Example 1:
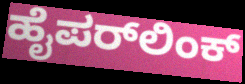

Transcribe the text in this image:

ಹೈಪರ್‌ಲಿಂಕ್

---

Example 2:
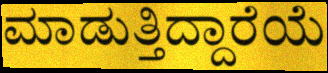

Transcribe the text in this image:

ಮಾಡುತ್ತಿದ್ದಾರೆಯೆ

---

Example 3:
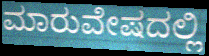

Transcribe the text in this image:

ಮಾರುವೇಷದಲ್ಲಿ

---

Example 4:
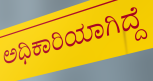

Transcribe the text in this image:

ಅಧಿಕಾರಿಯಾಗಿದ್ದೆ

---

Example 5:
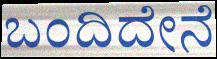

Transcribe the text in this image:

ಬಂದಿದೇನೆ